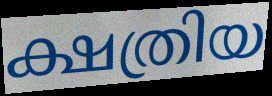
ക്ഷത്രിയ